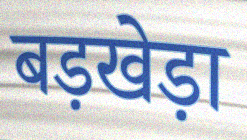
बड़खेड़ा